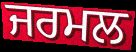
ਜਰਮਲ